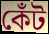
কেঁট